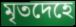
মৃতদেহে